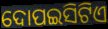
ଦୋପଇସିଟିଏ